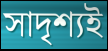
সাদৃশ্যই